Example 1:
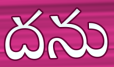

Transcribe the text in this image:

దను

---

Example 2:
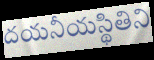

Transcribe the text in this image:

దయనీయస్థితిని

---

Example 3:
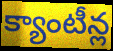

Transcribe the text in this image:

క్యాంటీన్ల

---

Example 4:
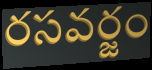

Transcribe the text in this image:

రసవర్జం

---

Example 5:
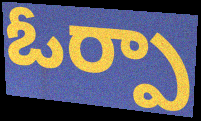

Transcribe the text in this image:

ఓర్పా